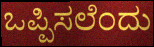
ಒಪ್ಪಿಸಲೆಂದು